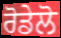
ਰੋਡੇਲੋ